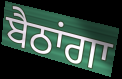
ਬੈਠਾਂਗਾ